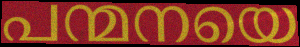
പന്മനയെ